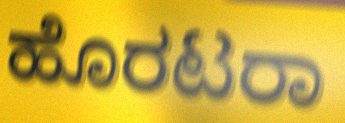
ಹೊರಟರಾ